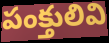
పంక్తులివి